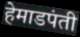
हेमाडपंती